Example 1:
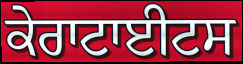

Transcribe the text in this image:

ਕੇਰਾਟਾਈਟਸ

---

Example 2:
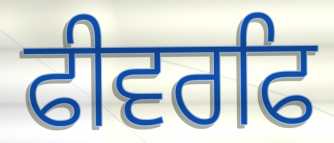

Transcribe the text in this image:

ਫੀਵਰਫਿ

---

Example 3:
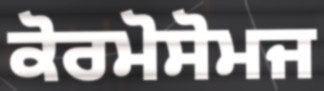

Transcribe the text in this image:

ਕੋਰਮੋਸੋਮਜ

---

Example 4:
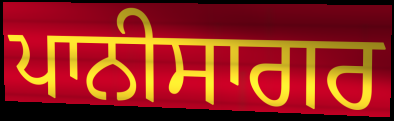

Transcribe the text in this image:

ਪਾਨੀਸਾਗਰ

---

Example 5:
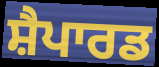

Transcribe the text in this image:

ਸ਼ੈਪਾਰਡ